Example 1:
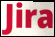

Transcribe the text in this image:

Jira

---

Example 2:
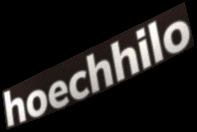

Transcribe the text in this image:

hoechhilo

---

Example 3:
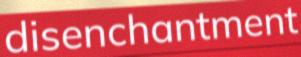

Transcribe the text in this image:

disenchantment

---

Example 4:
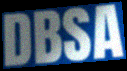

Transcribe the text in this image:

DBSA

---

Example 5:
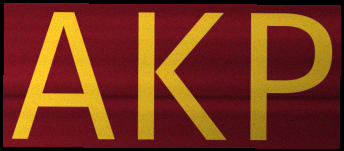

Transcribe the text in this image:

AKP